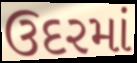
ઉદરમાં